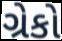
ગ્રેકો